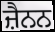
ਜ਼ੈਨਨ